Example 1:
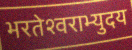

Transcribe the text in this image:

भरतेश्वराभ्युदय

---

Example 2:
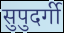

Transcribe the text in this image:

सुपुदर्गी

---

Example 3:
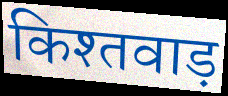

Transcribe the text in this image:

किश्तवाड़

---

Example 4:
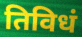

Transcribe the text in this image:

तिविधं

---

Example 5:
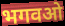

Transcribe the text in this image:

भगवओ